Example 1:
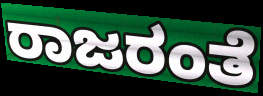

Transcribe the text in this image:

ರಾಜರಂತೆ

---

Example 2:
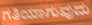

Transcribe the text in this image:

ಗತಿಯಾಗುವುದು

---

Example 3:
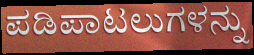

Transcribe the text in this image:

ಪಡಿಪಾಟಲುಗಳನ್ನು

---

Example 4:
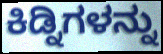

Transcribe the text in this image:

ಕಿಡ್ನಿಗಳನ್ನು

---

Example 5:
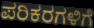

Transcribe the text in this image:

ಪರಿಕರಗಳಿಗೆ